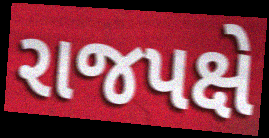
રાજપક્ષે